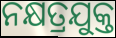
ନକ୍ଷତ୍ରଯୁକ୍ତ